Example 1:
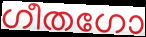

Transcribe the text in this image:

ഗീതഗോ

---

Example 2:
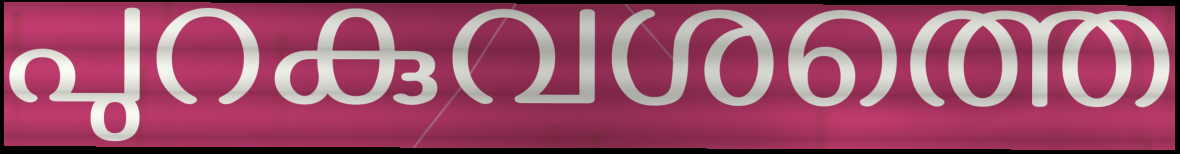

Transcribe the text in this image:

പുറകുവശത്തെ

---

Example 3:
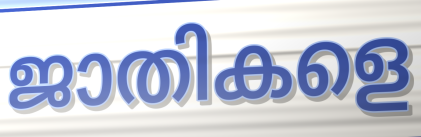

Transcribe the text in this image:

ജാതികളെ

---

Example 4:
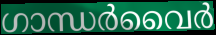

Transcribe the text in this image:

ഗാന്ധർവൈർ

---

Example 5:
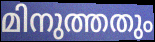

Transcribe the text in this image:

മിനുത്തതും